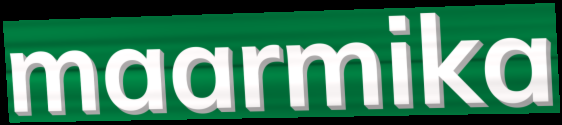
maarmika